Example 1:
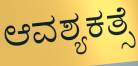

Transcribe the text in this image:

ಆವಶ್ಯಕತ್ಸೆ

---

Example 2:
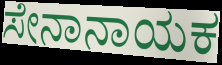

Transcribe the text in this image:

ಸೇನಾನಾಯಕ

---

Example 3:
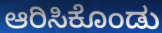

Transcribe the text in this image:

ಆರಿಸಿಕೊಂಡು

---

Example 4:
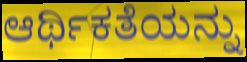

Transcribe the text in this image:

ಆರ್ಥಿಕತೆಯನ್ನು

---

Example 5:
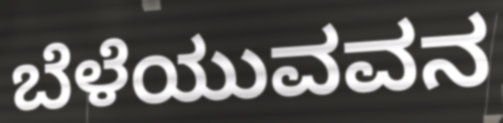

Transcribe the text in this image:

ಬೆಳೆಯುವವನ